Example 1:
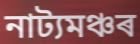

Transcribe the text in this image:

নাট্যমঞ্চৰ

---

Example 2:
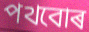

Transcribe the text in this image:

পথবোৰ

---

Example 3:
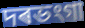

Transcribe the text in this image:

দৰভংগা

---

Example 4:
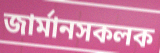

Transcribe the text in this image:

জাৰ্মানসকলক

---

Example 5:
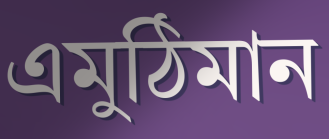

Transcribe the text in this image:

এমুঠিমান